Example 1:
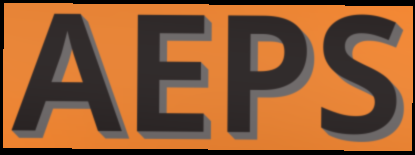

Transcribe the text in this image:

AEPS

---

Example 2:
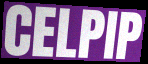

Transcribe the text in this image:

CELPIP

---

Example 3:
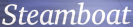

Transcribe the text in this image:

Steamboat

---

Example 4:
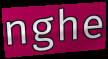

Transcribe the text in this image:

nghe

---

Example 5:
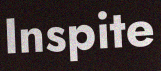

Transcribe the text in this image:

Inspite